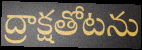
ద్రాక్షతోటను